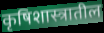
कृषिशास्त्रातील